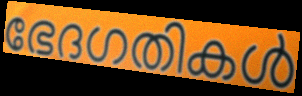
ഭേദഗതികൾ